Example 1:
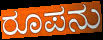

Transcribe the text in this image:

ರೂಪನು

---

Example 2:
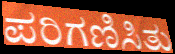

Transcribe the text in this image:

ಪರಿಗಣಿಸಿತು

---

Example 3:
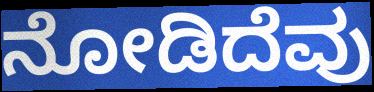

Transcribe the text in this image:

ನೋಡಿದೆವು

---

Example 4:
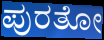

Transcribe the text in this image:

ಪುರತೋ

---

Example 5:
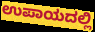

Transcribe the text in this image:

ಉಪಾಯದಲ್ಲಿ